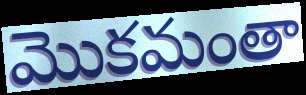
మొకమంతా